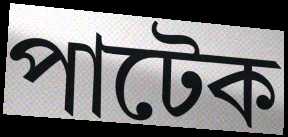
পাটেক